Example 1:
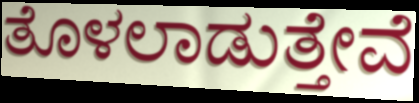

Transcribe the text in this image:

ತೊಳಲಾಡುತ್ತೇವೆ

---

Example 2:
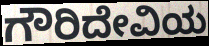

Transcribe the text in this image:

ಗೌರಿದೇವಿಯ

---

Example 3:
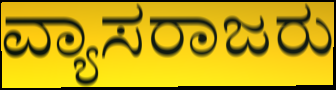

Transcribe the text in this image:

ವ್ಯಾಸರಾಜರು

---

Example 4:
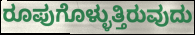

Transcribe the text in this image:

ರೂಪುಗೊಳ್ಳುತ್ತಿರುವುದು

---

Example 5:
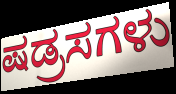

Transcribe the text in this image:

ಷಡ್ರಸಗಳು